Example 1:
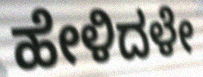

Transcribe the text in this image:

ಹೇಳಿದಳೇ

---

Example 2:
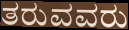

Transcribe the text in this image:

ತರುವವರು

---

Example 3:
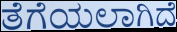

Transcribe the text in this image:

ತೆಗೆಯಲಾಗಿದೆ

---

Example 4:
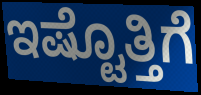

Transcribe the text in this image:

ಇಷ್ಟೊತ್ತಿಗೆ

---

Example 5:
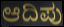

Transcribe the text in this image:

ಆದಿಪು